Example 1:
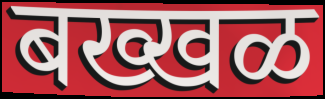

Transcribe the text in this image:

बख्खळ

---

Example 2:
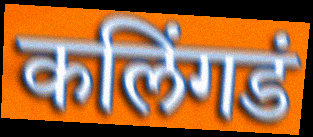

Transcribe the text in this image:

कलिंगडं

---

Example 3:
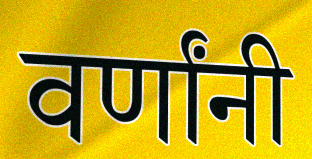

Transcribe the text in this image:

वर्णांनी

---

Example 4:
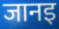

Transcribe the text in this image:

जानइ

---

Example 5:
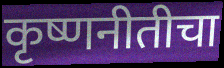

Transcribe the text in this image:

कृष्णनीतीचा